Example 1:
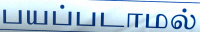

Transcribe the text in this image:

பயப்படாமல்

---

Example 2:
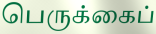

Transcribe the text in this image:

பெருக்கைப்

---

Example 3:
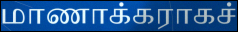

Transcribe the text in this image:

மாணாக்கராகச்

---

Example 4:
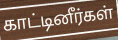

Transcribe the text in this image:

காட்டினீர்கள்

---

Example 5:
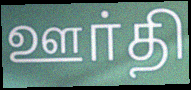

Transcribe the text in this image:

ஊர்தி